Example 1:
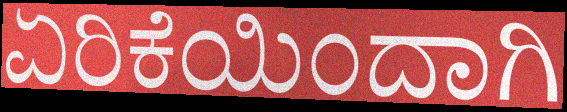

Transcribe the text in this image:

ಏರಿಕೆಯಿಂದಾಗಿ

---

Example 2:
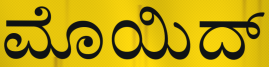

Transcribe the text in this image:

ಮೊಯಿದ್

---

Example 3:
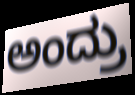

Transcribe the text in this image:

ಅಂದ್ರು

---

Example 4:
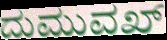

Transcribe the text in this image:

ದುಮುವಖ್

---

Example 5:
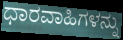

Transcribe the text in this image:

ಧಾರವಾಹಿಗಳನ್ನು